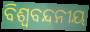
ବିଶ୍ୱବନ୍ଦନୀୟ